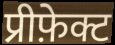
प्रीफ़ेक्ट